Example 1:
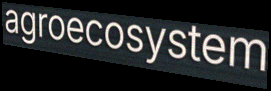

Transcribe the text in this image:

agroecosystem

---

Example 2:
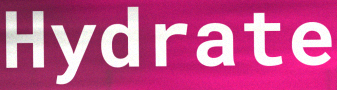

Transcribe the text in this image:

Hydrate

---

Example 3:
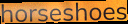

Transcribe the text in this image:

horseshoes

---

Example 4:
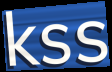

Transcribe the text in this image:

kss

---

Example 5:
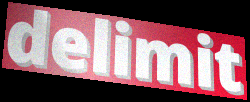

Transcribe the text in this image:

delimit